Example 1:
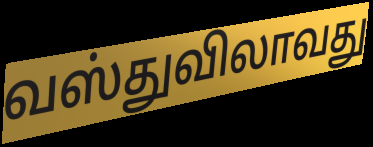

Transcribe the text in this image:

வஸ்துவிலாவது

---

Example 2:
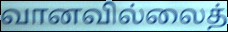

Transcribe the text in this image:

வானவில்லைத்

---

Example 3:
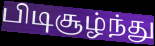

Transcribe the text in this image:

பிடிசூழ்ந்து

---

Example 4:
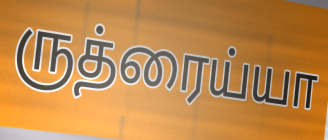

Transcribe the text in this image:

ருத்ரைய்யா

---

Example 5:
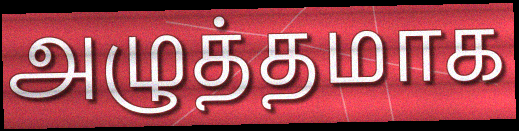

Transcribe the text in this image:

அழுத்தமாக